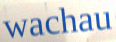
wachau